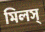
মিলস্